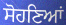
ਸੋਹਣਿਆਂ